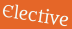
Elective